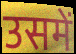
उसमें